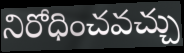
నిరోధించవచ్చు